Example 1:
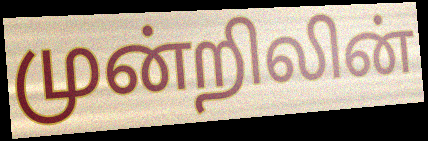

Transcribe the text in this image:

முன்றிலின்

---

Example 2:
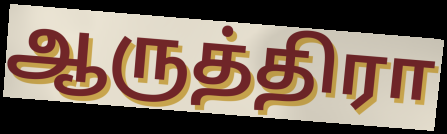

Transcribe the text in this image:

ஆருத்திரா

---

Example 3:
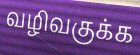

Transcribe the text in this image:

வழிவகுக்க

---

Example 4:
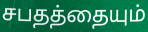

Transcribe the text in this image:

சபதத்தையும்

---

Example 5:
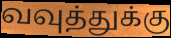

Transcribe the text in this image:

வவுத்துக்கு